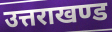
उत्तराखण्ड